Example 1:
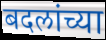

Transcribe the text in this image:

बदलांच्या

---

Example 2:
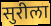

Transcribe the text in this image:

सुरीला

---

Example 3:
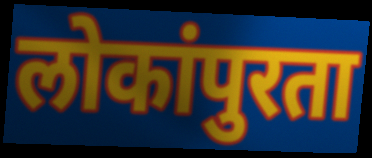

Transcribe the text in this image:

लोकांपुरता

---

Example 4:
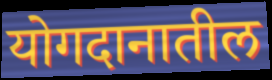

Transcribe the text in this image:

योगदानातील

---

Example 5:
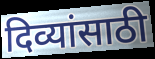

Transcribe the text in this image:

दिव्यांसाठी